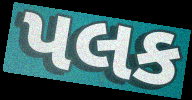
પલક